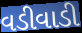
વડીવાડી